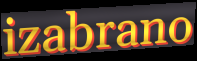
izabrano